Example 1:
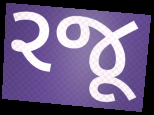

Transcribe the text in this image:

રજૂ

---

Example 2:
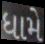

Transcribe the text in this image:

ધામે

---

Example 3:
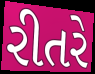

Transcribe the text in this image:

રીતરે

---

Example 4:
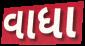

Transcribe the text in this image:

વાધા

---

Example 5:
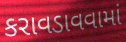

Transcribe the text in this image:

કરાવડાવવામાં